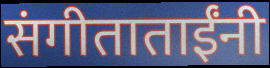
संगीताताईंनी